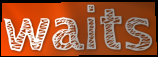
waits